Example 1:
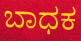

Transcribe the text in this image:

ಬಾಧಕ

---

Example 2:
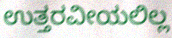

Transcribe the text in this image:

ಉತ್ತರವೀಯಲಿಲ್ಲ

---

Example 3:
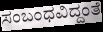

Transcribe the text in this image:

ಸಂಬಂಧವಿದ್ದಂತೆ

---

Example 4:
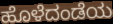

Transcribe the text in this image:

ಹೊಳೆದಂಡೆಯ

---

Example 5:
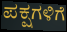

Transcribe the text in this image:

ಪಕ್ಷಗಳಿಗೆ